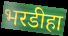
भरडीहा